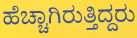
ಹೆಚ್ಚಾಗಿರುತ್ತಿದ್ದರು